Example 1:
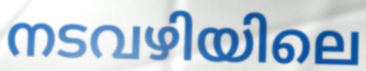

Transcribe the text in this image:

നടവഴിയിലെ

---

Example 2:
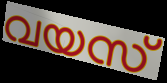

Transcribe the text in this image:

വയസ്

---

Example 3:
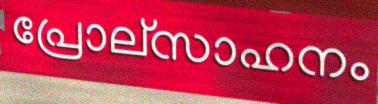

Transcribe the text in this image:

പ്രോല്സാഹനം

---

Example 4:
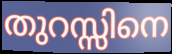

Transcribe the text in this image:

തുറസ്സിനെ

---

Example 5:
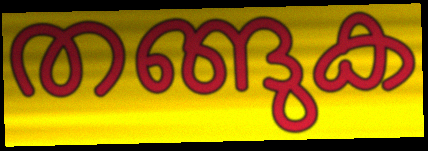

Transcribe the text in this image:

തങ്ങുക